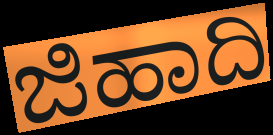
ಜಿಹಾದಿ